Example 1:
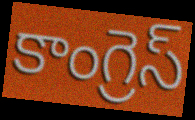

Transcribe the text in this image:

కాంగ్రెస్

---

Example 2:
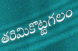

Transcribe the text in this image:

తరిమికొట్టగలం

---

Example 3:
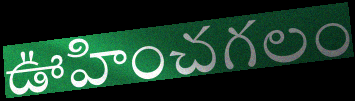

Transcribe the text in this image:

ఊహించగలం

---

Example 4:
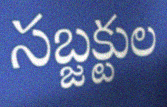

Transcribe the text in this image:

సబ్జక్టుల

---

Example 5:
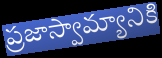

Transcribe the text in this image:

ప్రజాస్వామ్యానికి